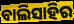
ବାଲିସାହିର